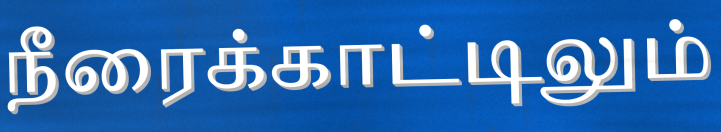
நீரைக்காட்டிலும்